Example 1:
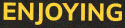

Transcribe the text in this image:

ENJOYING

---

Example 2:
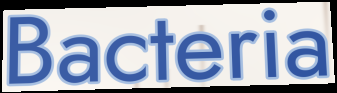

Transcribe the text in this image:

Bacteria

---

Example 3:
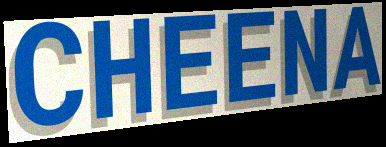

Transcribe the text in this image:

CHEENA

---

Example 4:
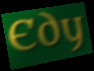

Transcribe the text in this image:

Edy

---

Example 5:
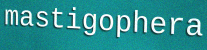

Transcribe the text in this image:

mastigophera